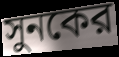
সুনকের